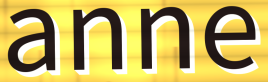
anne